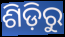
ଶିଡ଼ିରୁ